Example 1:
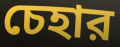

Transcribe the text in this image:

চেহার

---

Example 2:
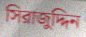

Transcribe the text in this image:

সিরাজুদ্দিন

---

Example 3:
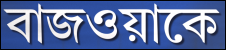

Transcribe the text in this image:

বাজওয়াকে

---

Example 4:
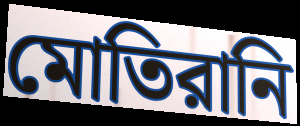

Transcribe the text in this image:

মোতিরানি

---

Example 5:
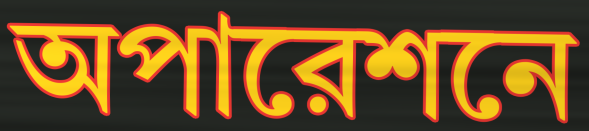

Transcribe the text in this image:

অপারেশনে